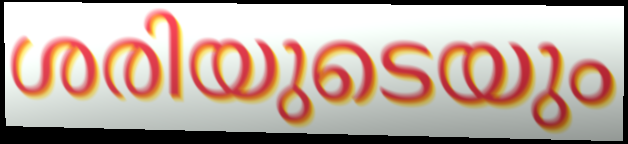
ശരിയുടെയും